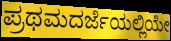
ಪ್ರಥಮದರ್ಜೆಯಲ್ಲಿಯೇ